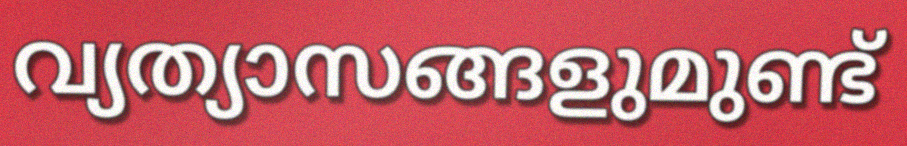
വ്യത്യാസങ്ങളുമുണ്ട്